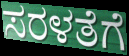
ಸರಳತೆಗೆ